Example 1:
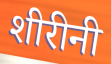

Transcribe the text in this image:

शीरीनी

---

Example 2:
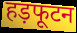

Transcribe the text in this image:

हड़फूटन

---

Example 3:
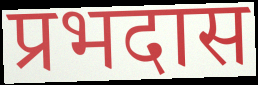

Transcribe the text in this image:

प्रभदास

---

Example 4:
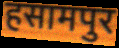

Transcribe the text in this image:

हसामपुर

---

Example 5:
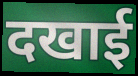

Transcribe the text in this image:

दखाई